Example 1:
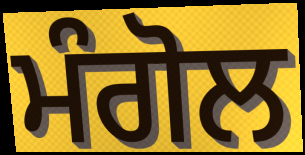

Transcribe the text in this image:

ਮੰਗੋਲ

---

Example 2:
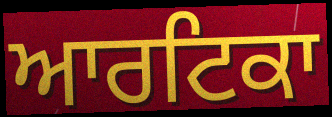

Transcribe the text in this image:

ਆਰਟਿਕਾ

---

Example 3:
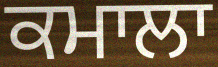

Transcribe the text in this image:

ਕਮਾਲਾ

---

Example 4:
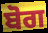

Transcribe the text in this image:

ਬੋਗ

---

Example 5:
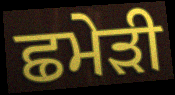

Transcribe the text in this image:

ਛਮੇੜੀ